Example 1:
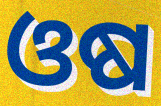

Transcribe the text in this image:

ଓଷ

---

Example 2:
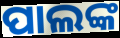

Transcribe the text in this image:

ପାଲଙ୍କ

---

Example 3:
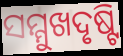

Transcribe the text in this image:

ସମ୍ମୁଖଦୃଷ୍ଟି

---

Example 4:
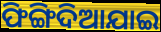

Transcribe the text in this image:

ଫିଙ୍ଗିଦିଆଯାଇ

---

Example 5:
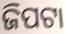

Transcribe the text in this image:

ଜିପଟା